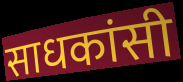
साधकांसी